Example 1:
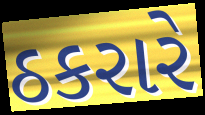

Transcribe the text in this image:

ઠકરારે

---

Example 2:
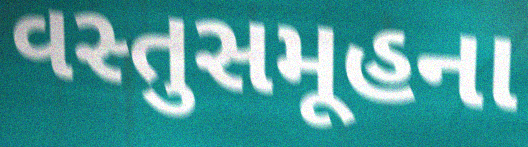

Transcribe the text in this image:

વસ્તુસમૂહના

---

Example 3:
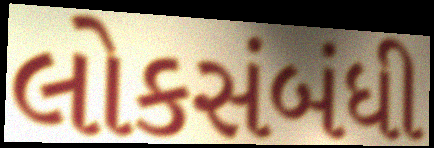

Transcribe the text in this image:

લોકસંબંધી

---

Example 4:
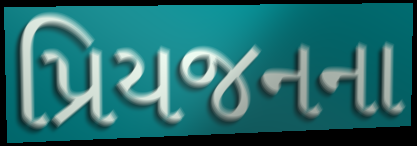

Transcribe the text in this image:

પ્રિયજનના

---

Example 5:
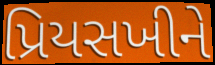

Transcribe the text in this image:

પ્રિયસખીને